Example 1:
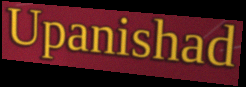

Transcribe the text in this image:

Upanishad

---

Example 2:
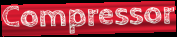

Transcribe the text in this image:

Compressor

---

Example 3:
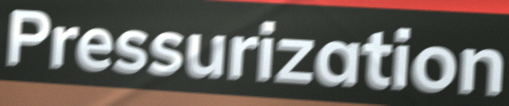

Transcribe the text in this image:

Pressurization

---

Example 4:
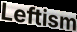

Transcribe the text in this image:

Leftism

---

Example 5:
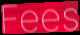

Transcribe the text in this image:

Fees